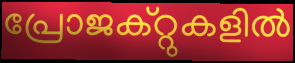
പ്രോജക്റ്റുകളിൽ